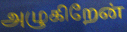
அழுகிறேன்